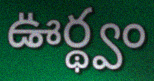
ఊర్థ్వం